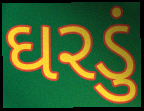
ઘરડું